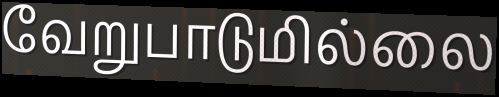
வேறுபாடுமில்லை